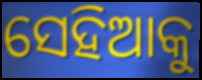
ସେହିଆକୁ